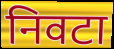
निवटा